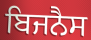
ਬਿਜਨੈਸ